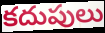
కదుపులు